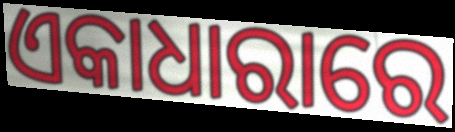
ଏକାଧାରାରେ